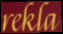
rekla